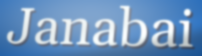
Janabai